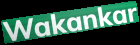
Wakankar